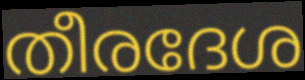
തീരദേശ